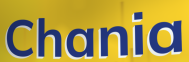
Chania